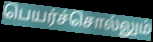
பெயர்ச்சொல்லும்